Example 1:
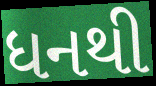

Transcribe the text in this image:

ધનથી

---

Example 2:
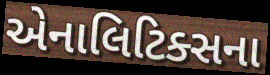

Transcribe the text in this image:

એનાલિટિક્સના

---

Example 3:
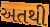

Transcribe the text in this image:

અતથી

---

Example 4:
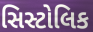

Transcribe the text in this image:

સિસ્ટોલિક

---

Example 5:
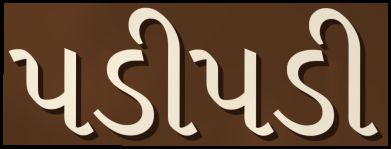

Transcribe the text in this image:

પડીપડી